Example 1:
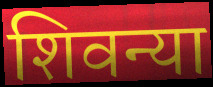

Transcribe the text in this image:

शिवन्या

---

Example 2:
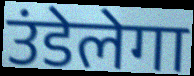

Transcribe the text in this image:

उंडेलेगा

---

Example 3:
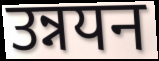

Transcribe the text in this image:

उन्नयन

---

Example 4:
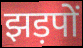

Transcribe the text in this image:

झड़पों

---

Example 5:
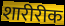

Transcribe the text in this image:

शारीरीक